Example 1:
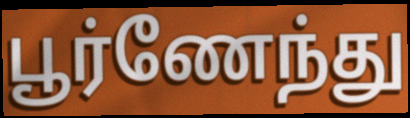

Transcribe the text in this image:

பூர்ணேந்து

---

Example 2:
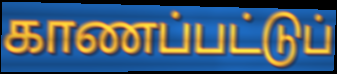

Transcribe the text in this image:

காணப்பட்டுப்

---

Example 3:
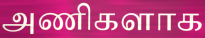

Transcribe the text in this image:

அணிகளாக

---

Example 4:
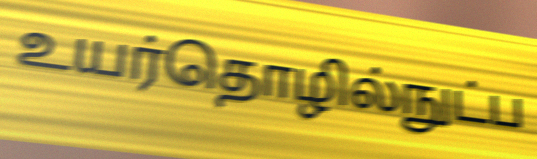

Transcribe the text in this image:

உயர்தொழில்நுட்ப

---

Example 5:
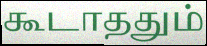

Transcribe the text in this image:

கூடாததும்